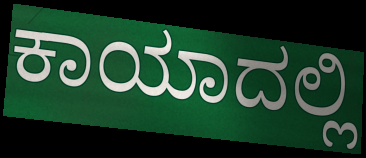
ಕಾಯಾದಲ್ಲಿ